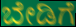
ಬೇಡಿಗೆ